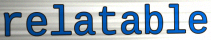
relatable